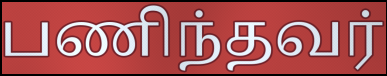
பணிந்தவர்